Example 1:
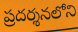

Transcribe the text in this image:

ప్రదర్శనలోని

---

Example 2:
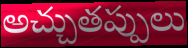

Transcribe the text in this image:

అచ్చుతప్పులు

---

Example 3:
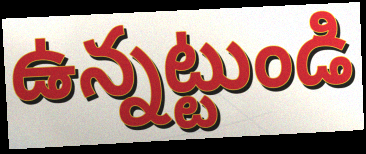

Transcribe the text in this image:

ఉన్నట్టుండి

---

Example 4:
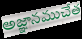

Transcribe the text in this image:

అజ్ఞానముచేత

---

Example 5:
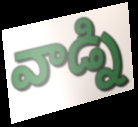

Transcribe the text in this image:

వాడ్ని